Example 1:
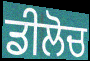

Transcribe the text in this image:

ਡੀਲੋਚ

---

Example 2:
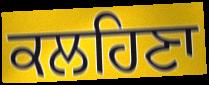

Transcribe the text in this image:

ਕਲਹਿਣਾ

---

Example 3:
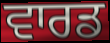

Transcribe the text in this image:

ਵਾਰਡ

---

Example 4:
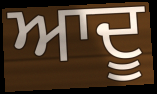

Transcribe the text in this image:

ਆਦੂ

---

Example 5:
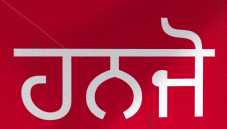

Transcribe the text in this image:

ਹਨਜੋ